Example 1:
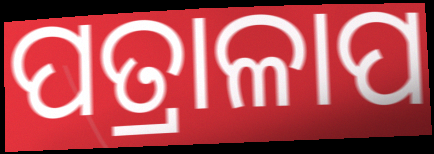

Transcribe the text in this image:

ପତ୍ରାଳାପ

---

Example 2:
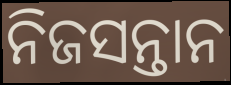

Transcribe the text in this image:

ନିଜସନ୍ତାନ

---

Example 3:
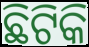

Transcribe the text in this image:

ଛିଟିକି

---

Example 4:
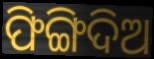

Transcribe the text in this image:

ଫିଙ୍ଗିଦିଅ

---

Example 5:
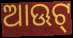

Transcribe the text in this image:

ଆଊଟ୍